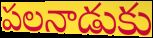
పలనాడుకు